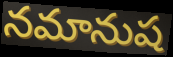
నమానుష